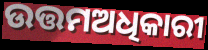
ଉତ୍ତମଅଧିକାରୀ